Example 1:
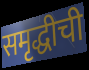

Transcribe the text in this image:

समृद्धीची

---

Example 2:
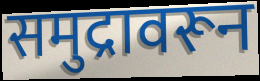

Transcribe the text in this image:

समुद्रावरून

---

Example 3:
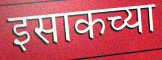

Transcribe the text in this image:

इसाकच्या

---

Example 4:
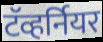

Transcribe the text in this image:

टॅव्हर्नियर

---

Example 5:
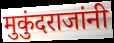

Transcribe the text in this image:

मुकुंदराजांनी